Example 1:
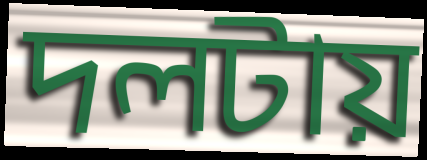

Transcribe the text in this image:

দলটায়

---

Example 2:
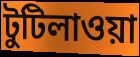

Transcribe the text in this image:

টুটিলাওয়া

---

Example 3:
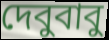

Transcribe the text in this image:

দেবুবাবু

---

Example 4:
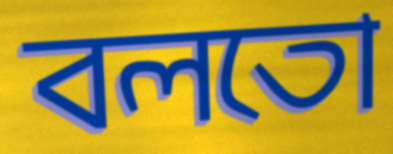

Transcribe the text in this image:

বলতো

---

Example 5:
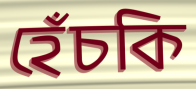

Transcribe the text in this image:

হেঁচকি